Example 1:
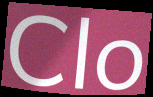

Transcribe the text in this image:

Clo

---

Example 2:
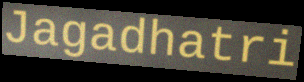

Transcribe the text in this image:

Jagadhatri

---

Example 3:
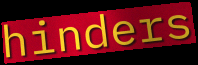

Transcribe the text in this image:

hinders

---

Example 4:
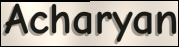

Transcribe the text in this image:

Acharyan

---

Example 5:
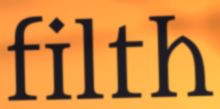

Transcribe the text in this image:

filth